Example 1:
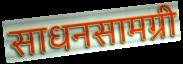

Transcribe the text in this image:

साधनसामग्री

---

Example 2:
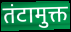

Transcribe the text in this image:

तंटामुक्त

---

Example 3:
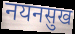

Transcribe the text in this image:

नयनसुख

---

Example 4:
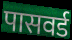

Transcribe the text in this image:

पासवर्ड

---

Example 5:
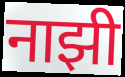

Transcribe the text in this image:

नाझी